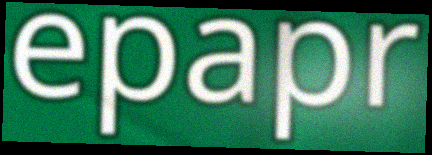
epapr